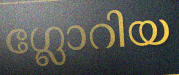
ഗ്ലോറിയ